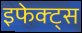
इफेक्‍ट्स